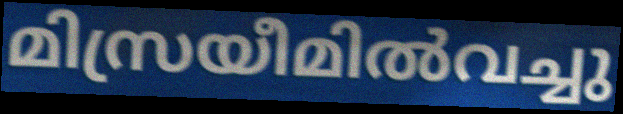
മിസ്രയീമിൽവച്ചു